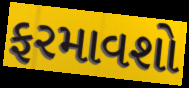
ફરમાવશો